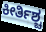
ಕೀರ್ತಿಶ್ಚ